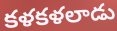
కళకళలాడు